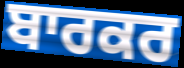
ਬਾਰਕਰ